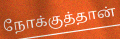
நோக்குத்தான்